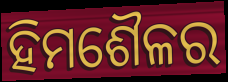
ହିମଶୈଳର